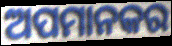
ଅପମାନକର